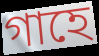
গাহে